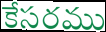
కేసరము